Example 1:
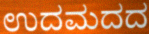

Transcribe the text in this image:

ಉದಮದದ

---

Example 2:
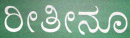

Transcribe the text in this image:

ರೀತೀನೂ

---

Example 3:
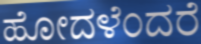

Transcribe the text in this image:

ಹೋದಳೆಂದರೆ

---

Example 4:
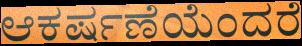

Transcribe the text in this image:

ಆಕರ್ಷಣೆಯೆಂದರೆ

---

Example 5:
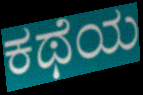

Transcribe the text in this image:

ಕಥೆಯ